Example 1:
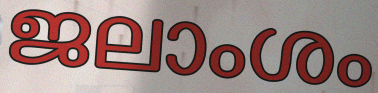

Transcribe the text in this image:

ജലാംശം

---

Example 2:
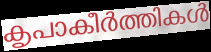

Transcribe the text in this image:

കൃപാകീർത്തികൾ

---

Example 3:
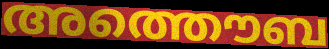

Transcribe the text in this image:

അത്തൌബ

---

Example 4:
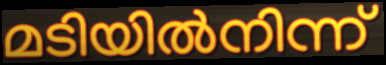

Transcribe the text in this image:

മടിയിൽനിന്ന്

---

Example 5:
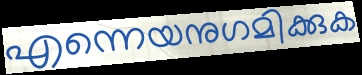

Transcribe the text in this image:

എന്നെയനുഗമിക്കുക